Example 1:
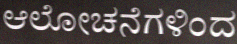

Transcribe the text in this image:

ಆಲೋಚನೆಗಳಿಂದ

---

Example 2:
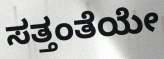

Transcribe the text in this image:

ಸತ್ತಂತೆಯೇ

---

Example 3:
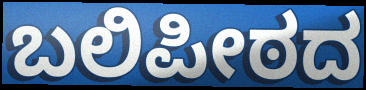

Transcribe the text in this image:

ಬಲಿಪೀಠದ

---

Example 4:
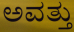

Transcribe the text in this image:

ಅವತ್ತು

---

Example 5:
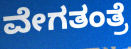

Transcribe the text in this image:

ವೇಗತಂತ್ರೆ